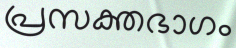
പ്രസക്തഭാഗം